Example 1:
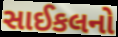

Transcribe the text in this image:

સાઈકલનો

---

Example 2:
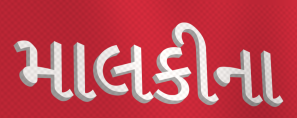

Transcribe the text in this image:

માલકીના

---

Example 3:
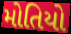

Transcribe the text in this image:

મોતિયો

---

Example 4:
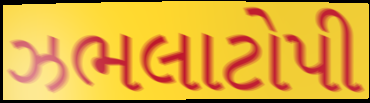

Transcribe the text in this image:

ઝભલાટોપી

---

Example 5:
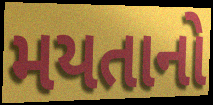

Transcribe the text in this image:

મયતાનો